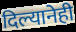
दिल्यानेही